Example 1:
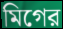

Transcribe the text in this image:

মিগের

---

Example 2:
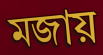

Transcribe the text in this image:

মজায়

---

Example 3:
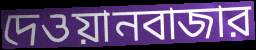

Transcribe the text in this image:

দেওয়ানবাজার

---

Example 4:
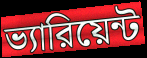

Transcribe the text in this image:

ভ্যারিয়েন্ট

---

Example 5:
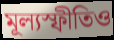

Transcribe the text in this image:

মূল্যস্ফীতিও